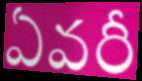
ఏవరీ